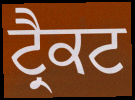
ਟ੍ਰੈਕਟ